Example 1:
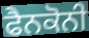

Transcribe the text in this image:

ਫੈਨਕੋਨੀ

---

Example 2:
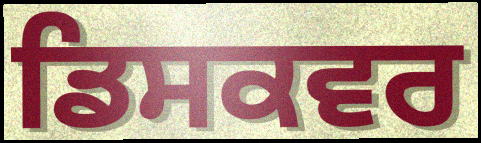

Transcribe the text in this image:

ਡਿਸਕਵਰ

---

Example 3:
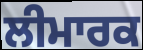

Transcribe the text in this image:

ਲੀਮਾਰਕ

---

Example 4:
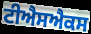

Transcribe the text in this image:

ਟੀਐਸਐਕਸ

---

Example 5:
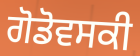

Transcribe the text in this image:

ਗੋਡੋਵਸਕੀ